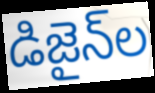
డిజైన్‌ల